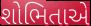
શોભિતાએ